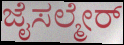
ಜೈಸಲ್ಮೇರ್